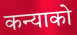
कन्याको